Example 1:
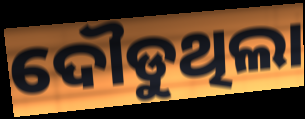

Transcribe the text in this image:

ଦୌଡୁଥିଲା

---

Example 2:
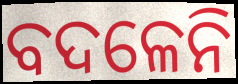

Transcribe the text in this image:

ବଦଳେନି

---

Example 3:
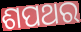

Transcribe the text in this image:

ଶପଥର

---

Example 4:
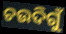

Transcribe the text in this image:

ଚଉଦିଗୁଁ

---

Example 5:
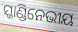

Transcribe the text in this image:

ସ୍କାଣ୍ଡିନେଭୀୟ